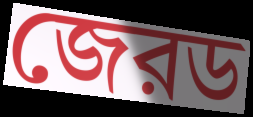
জেরড